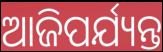
ଆଜିପର୍ଯ୍ୟନ୍ତ